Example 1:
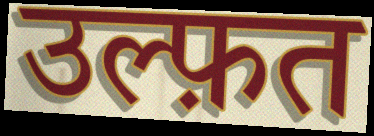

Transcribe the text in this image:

उल्फ़त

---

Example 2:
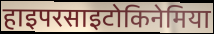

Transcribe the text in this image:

हाइपरसाइटोकिनेमिया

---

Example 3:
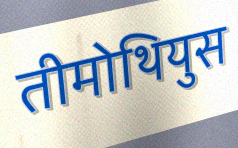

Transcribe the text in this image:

तीमोथियुस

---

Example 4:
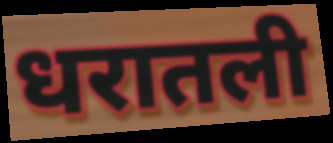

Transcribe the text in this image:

धरातली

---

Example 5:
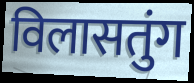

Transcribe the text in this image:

विलासतुंग